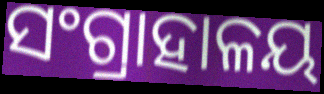
ସଂଗ୍ରାହାଳୟ